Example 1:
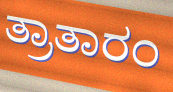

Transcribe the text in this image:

ತ್ರಾತಾರಂ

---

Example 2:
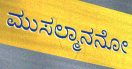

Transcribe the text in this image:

ಮುಸಲ್ಮಾನನೋ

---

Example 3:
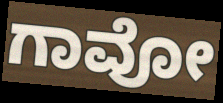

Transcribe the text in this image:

ಗಾವೋ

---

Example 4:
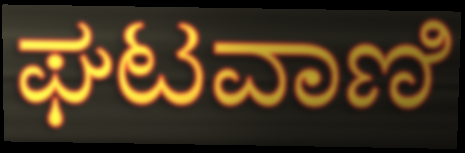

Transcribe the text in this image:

ಘಟವಾಣಿ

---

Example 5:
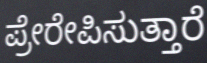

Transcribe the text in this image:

ಪ್ರೇರೇಪಿಸುತ್ತಾರೆ